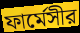
ফার্মেসীর